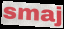
smaj